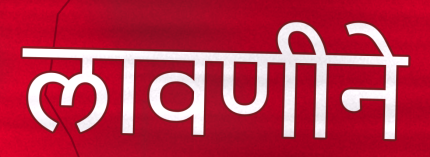
लावणीने